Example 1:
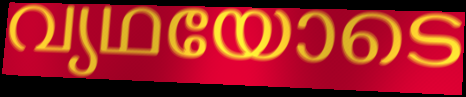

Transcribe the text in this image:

വ്യഥയോടെ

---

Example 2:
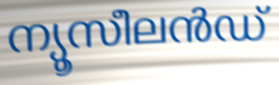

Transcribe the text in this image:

ന്യൂസീലൻഡ്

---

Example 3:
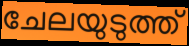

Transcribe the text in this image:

ചേലയുടുത്ത്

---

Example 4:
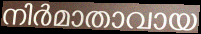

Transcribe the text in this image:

നിർമാതാവായ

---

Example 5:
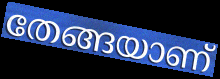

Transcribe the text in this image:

തേങ്ങയാണ്